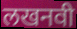
लखनवी